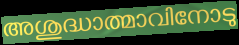
അശുദ്ധാത്മാവിനോടു